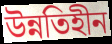
উন্নতিহীন